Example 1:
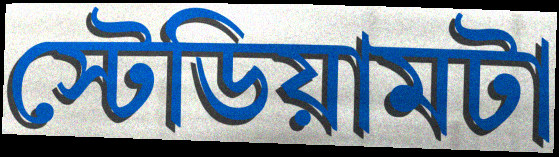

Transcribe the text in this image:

স্টেডিয়ামটা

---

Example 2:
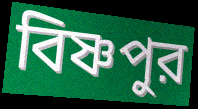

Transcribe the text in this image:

বিষ্ণপুর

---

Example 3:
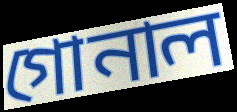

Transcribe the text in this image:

গোনাল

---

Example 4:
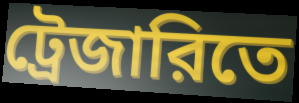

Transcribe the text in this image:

ট্রেজারিতে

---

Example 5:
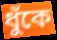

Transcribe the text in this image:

ধুঁকে